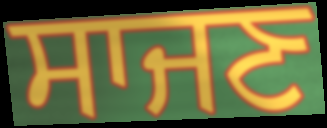
ਸਾਜਣ